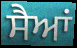
ਸੈਆਂ